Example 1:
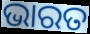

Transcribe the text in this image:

ଭାରତ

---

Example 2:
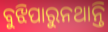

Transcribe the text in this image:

ବୁଝିପାରୁନଥାନ୍ତି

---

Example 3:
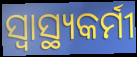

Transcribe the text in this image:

ସ୍ୱାସ୍ଥ୍ୟକର୍ମୀ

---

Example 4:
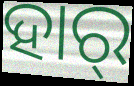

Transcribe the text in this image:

ହାର୍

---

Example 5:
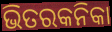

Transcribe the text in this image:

ଭିତରକନିକା